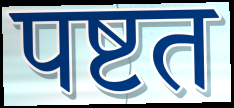
पष्टत